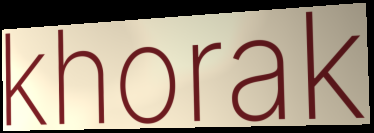
khorak